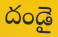
దండై